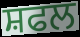
ਸ਼ਫਲ